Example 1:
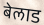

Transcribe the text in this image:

बेलाड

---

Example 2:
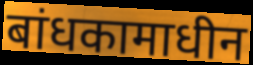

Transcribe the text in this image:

बांधकामाधीन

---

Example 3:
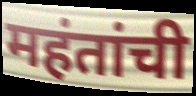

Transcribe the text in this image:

महंतांची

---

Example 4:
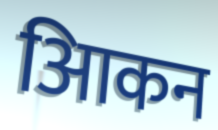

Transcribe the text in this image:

आिकन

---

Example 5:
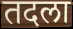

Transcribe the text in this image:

तदला